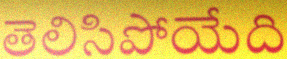
తెలిసిపోయేది